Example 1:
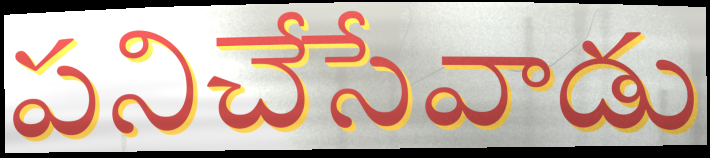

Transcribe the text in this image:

పనిచేసేవాడు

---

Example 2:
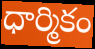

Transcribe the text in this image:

ధార్మికం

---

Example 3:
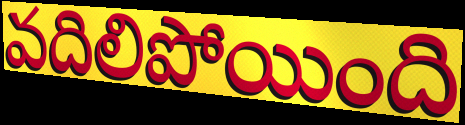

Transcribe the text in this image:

వదిలిపోయింది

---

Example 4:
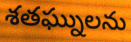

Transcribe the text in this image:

శతఘ్నులను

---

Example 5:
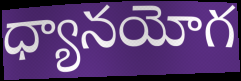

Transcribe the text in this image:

ధ్యానయోగ